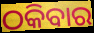
ଠକିବାର